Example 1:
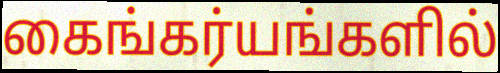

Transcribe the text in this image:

கைங்கர்யங்களில்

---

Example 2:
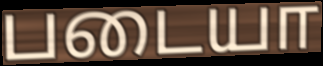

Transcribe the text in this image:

படையா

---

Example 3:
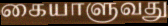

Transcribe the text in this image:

கையாளுவது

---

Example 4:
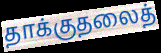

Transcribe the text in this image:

தாக்குதலைத்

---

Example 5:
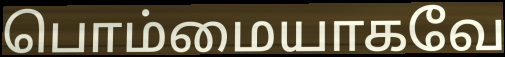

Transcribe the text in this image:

பொம்மையாகவே